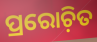
ପ୍ରରୋଚ଼ିତ